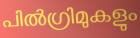
പിൽഗ്രിമുകളും